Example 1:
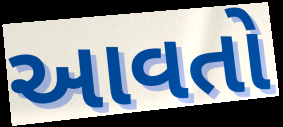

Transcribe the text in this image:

આવતો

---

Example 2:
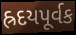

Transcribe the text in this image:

હ્રદયપૂર્વક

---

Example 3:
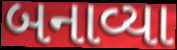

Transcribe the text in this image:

બનાવ્યા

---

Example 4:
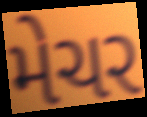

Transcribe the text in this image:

મેચર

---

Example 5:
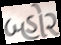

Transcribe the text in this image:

બ્હોર